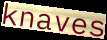
knaves